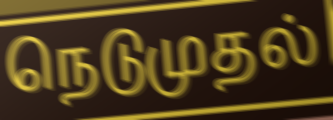
நெடுமுதல்